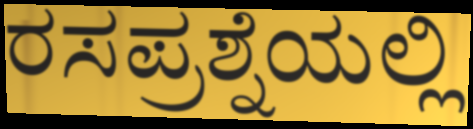
ರಸಪ್ರಶ್ನೆಯಲ್ಲಿ